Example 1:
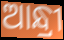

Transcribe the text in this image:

ଆନ୍ଧ୍ରୀ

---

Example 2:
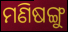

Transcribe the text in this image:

ମଣିଷଙ୍ଗୁ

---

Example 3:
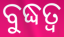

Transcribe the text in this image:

ବୁଦ୍ଧତ୍ଵ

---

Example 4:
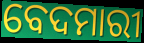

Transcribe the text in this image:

ବେଦମାରୀ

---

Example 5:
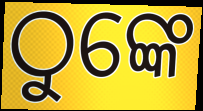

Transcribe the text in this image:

ଠୁଙ୍କେ